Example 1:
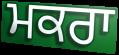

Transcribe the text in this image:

ਮਕਰਾ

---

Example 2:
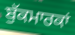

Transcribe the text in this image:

ਬੁੱਕਮਾਰਕਾਂ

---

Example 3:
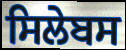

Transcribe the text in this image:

ਸਿਲੇਬਸ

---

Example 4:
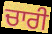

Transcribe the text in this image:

ਚਾਰੀ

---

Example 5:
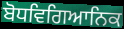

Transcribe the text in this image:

ਬੋਧਵਿਗਿਆਨਿਕ